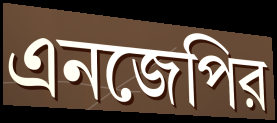
এনজেপির